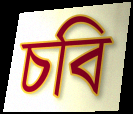
চবি